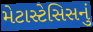
મેટાસ્ટેસિસનું